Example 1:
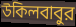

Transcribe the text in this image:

উকিলবাবুর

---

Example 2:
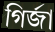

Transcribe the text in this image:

গির্জা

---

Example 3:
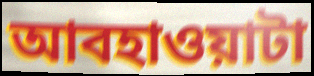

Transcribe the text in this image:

আবহাওয়াটা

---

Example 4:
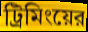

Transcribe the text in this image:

ট্রিমিংয়ের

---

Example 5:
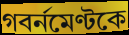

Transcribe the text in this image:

গবর্নমেণ্টকে